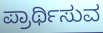
ಪ್ರಾರ್ಥಿಸುವ